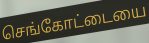
செங்கோட்டையை